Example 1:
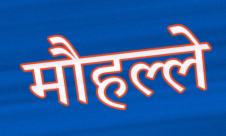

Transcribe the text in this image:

मौहल्ले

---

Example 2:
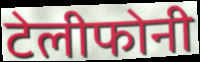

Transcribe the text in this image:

टेलीफोनी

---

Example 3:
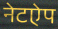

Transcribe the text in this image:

नेटऐप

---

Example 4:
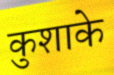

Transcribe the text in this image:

कुशाके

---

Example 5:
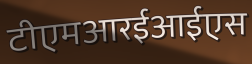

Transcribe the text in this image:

टीएमआरईआईएस